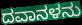
ದವಾನಳನು